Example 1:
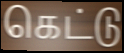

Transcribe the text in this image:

கெட்டு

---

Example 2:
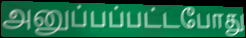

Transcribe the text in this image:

அனுப்பப்பட்டபோது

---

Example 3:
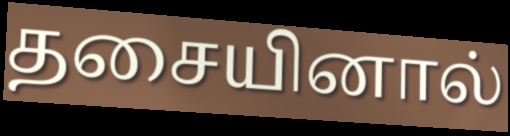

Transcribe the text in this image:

தசையினால்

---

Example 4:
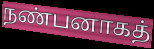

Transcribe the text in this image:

நண்பனாகத்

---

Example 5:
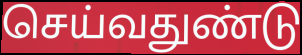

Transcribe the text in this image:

செய்வதுண்டு